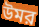
উমর